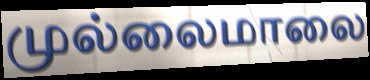
முல்லைமாலை